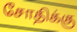
சோதிக்கு